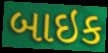
બાઇક